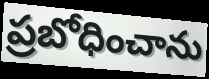
ప్రబోధించాను